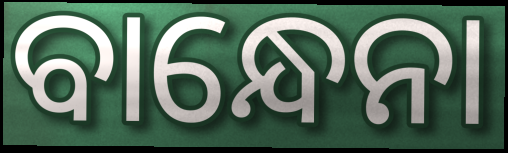
ବାନ୍ଧେନା